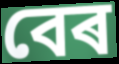
বেৰ